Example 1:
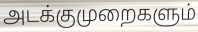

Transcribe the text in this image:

அடக்குமுறைகளும்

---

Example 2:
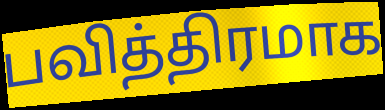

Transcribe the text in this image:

பவித்திரமாக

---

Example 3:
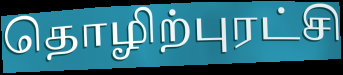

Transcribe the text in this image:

தொழிற்புரட்சி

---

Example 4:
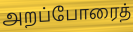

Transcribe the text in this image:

அறப்போரைத்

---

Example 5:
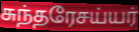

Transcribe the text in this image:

சுந்தரேசய்யர்